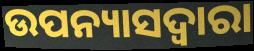
ଉପନ୍ୟାସଦ୍ୱାରା